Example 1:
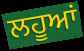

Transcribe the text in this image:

ਲਹੂਆਂ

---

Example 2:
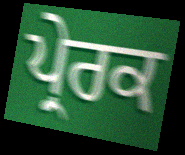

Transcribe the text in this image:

ਪ੍ਰੇਰਕ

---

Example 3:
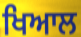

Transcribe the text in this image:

ਖਿਆਲ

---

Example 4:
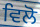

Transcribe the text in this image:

ਵਿਲੋ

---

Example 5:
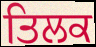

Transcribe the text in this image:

ਤਿਲਕ